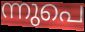
ന്നുപെ